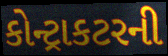
કોન્ટ્રાકટરની